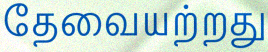
தேவையற்றது